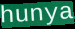
hunya